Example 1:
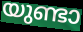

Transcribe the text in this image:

യുണ്ടാ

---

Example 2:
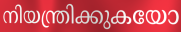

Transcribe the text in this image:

നിയന്ത്രിക്കുകയോ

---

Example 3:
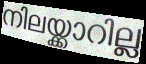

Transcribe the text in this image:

നിലയ്ക്കാറില്ല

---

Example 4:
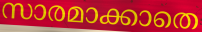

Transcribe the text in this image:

സാരമാക്കാതെ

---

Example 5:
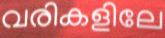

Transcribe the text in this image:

വരികളിലേ